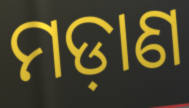
ମଡ଼ାଣ